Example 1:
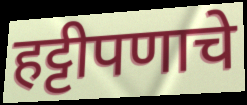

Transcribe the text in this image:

हट्टीपणाचे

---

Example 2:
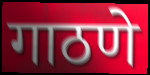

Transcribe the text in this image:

गाठणे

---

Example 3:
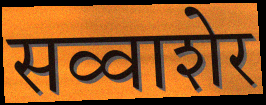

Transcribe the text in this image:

सव्वाशेर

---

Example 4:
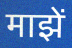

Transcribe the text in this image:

माझें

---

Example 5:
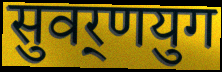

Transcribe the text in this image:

सुवर्णयुग